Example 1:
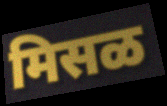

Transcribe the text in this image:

मिसळ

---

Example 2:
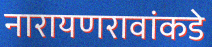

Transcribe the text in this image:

नारायणरावांकडे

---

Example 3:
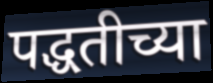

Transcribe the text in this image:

पद्धतीच्या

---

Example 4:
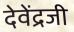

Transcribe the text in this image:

देवेंद्रजी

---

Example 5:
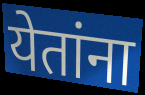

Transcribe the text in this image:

येतांना